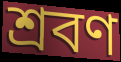
শ্রবণ